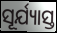
ସୂର୍ଯ୍ୟାସ୍ତ